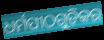
ଧର୍ମପୀଠଗୁଡ଼ିକର